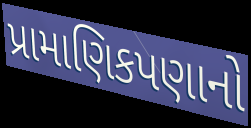
પ્રામાણિકપણાનો